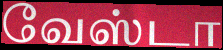
வேஸ்டா